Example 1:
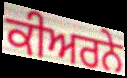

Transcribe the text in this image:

ਕੀਅਰਨੇ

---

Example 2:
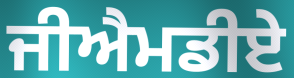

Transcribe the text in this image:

ਜੀਐਮਡੀਏ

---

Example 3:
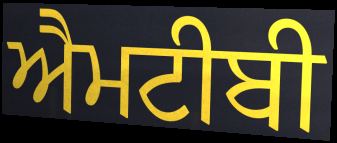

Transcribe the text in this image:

ਐਮਟੀਬੀ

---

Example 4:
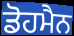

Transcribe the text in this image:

ਡੋਹਮੈਨ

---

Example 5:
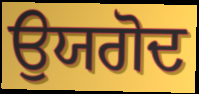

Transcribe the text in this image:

ਉਯਗੋਦ